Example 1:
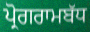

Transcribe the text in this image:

ਪ੍ਰੋਗਰਾਮਬੱਧ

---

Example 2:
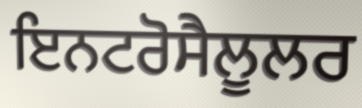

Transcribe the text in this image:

ਇਨਟਰੋਸੈਲੂਲਰ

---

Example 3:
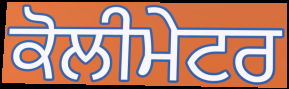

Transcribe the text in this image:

ਕੋਲੀਮੇਟਰ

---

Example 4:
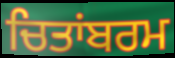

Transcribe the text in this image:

ਚਿਤਾਂਬਰਮ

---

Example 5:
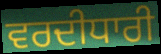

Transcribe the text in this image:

ਵਰਦੀਧਾਰੀ